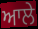
ਆਲੇ